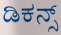
ಡಿಕನ್ಸ್